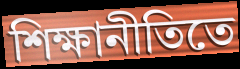
শিক্ষানীতিতে